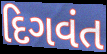
દિગવંત